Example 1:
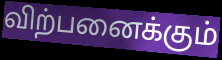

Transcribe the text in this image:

விற்பனைக்கும்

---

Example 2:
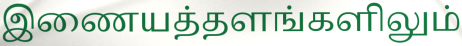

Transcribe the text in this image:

இணையத்தளங்களிலும்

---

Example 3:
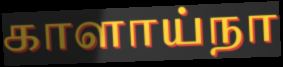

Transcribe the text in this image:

காளாய்நா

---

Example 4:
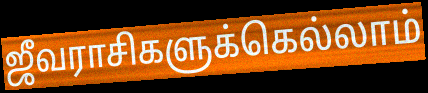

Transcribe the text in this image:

ஜீவராசிகளுக்கெல்லாம்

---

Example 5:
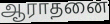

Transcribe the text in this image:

ஆராதனை